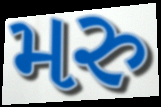
મરુ